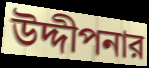
উদ্দীপনার